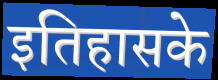
इतिहासके